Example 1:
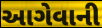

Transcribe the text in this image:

આગેવાની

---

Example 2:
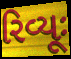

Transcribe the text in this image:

રિવ્યૂઃ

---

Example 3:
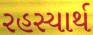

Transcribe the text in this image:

રહસ્યાર્થ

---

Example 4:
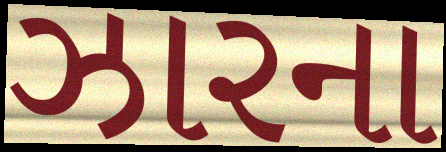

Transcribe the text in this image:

ઝારના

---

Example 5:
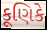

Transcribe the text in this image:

કૂણિકે